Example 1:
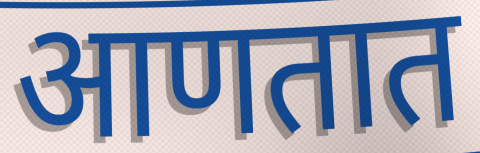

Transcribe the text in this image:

आणतात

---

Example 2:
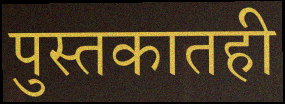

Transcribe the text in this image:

पुस्तकातही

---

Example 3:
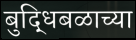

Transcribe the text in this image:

बुद्धिबळाच्या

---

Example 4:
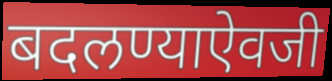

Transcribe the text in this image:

बदलण्याऐवजी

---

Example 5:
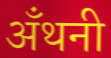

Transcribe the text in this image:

अँथनी